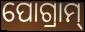
ପୋଗ୍ରାମ୍